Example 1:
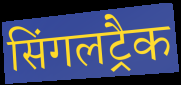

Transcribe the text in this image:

सिंगलट्रैक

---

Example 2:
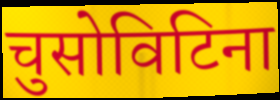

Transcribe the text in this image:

चुसोविटिना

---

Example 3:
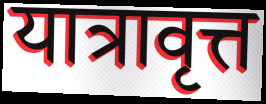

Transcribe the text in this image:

यात्रावृत्त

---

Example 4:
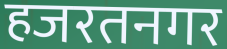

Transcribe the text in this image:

हजरतनगर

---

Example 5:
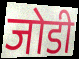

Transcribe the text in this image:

जोडी